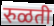
रुळती